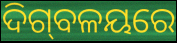
ଦିଗ୍‌ବଳୟରେ